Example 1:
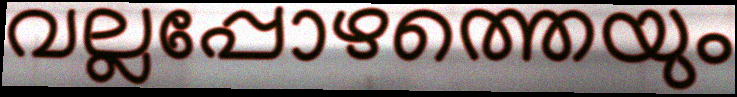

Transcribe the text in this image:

വല്ലപ്പോഴത്തെയും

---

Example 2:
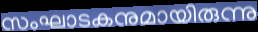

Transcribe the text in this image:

സംഘാടകനുമായിരുന്നു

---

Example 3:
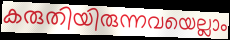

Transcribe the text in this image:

കരുതിയിരുന്നവയെല്ലാം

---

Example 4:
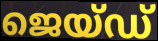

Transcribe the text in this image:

ജെയ്ഡ്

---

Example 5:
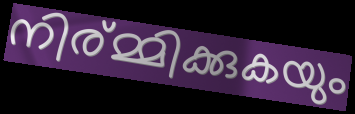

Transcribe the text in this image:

നിര്മ്മിക്കുകയും